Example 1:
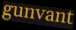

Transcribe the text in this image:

gunvant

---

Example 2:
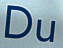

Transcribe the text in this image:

Du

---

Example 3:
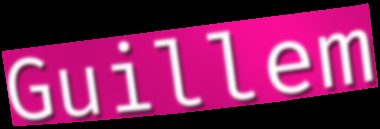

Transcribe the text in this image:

Guillem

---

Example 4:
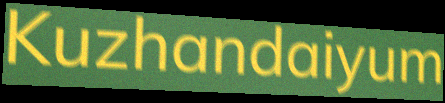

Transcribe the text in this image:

Kuzhandaiyum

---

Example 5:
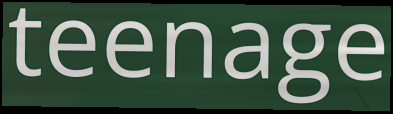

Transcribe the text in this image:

teenage